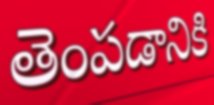
తెంపడానికి